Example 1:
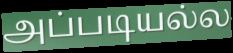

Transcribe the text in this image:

அப்படியல்ல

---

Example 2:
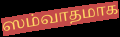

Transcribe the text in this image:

ஸம்வாதமாக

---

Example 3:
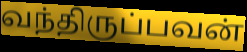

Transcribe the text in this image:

வந்திருப்பவன்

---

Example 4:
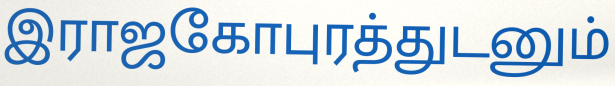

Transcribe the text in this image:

இராஜகோபுரத்துடனும்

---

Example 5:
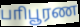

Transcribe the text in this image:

பரிபூரண